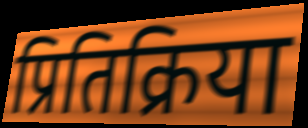
प्रितिक्रिया